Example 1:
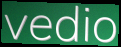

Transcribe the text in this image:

vedio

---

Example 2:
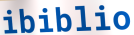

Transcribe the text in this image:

ibiblio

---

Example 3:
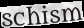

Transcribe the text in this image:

schism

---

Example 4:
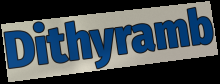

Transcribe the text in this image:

Dithyramb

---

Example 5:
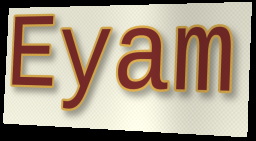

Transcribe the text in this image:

Eyam